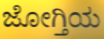
ಜೋಗ್ತಿಯ